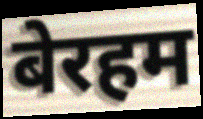
बेरहम